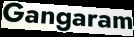
Gangaram